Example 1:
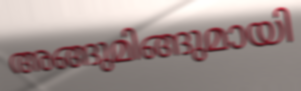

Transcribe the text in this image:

അങ്ങുമിങ്ങുമായി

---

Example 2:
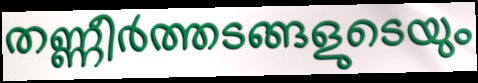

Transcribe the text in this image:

തണ്ണീർത്തടങ്ങളുടെയും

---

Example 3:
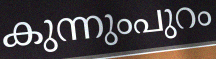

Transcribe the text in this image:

കുന്നുംപുറം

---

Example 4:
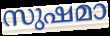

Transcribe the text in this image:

സുഷമാ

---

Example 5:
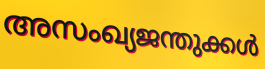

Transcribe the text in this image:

അസംഖ്യജന്തുക്കൾ